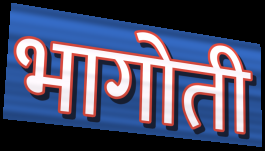
भागोती